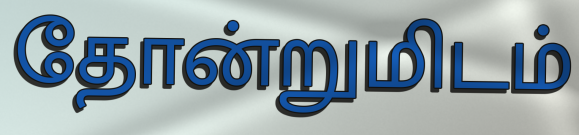
தோன்றுமிடம்